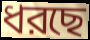
ধরছে